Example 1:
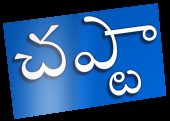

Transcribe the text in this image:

చఎ్టా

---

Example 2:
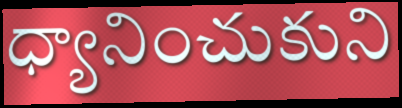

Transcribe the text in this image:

ధ్యానించుకుని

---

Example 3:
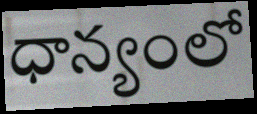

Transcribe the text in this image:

ధాన్యంలో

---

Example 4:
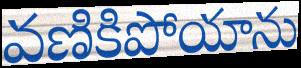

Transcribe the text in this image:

వణికిపోయాను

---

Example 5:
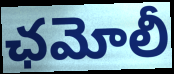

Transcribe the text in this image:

ఛమోలీ